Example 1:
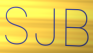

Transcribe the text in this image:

SJB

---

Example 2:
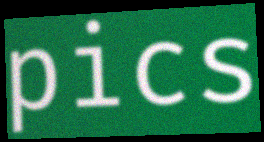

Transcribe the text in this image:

pics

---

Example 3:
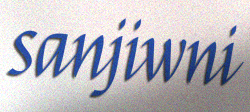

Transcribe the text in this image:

sanjiwni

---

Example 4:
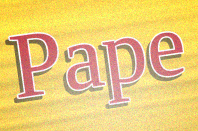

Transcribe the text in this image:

Pape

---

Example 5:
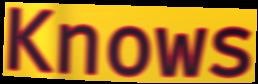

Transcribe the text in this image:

Knows